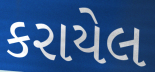
કરાયેલ